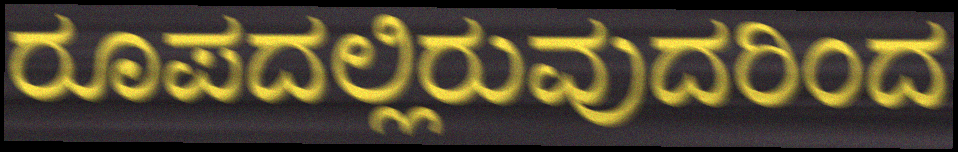
ರೂಪದಲ್ಲಿರುವುದರಿಂದ